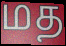
மத